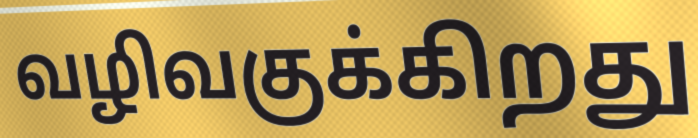
வழிவகுக்கிறது